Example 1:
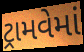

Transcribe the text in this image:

ટ્રામવેમાં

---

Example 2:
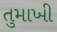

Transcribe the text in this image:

તુમાખી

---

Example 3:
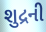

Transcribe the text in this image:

શુદ્રની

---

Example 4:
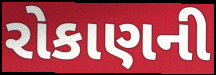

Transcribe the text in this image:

રોકાણની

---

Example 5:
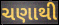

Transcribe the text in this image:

ચણાથી